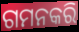
ଗମନକରି